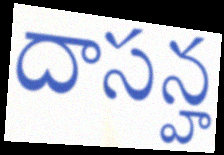
దాసన్హ